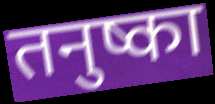
तनुष्का